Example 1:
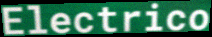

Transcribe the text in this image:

Electrico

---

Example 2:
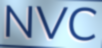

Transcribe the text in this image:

NVC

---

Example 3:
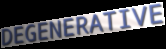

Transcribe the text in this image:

DEGENERATIVE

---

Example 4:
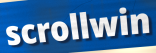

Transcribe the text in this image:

scrollwin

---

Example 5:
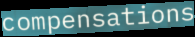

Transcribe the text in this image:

compensations